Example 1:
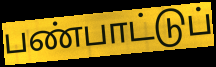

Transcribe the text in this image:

பண்பாட்டுப்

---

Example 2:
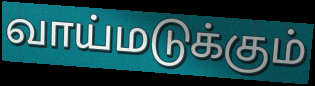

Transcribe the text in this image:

வாய்மடுக்கும்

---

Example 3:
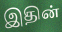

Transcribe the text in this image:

இதின்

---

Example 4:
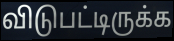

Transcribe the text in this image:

விடுபட்டிருக்க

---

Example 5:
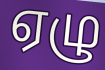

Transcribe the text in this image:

ஏழு